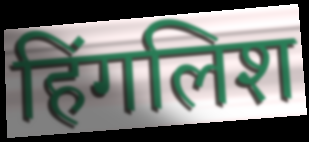
हिंगलिश